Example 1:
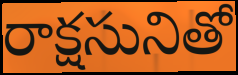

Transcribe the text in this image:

రాక్షసునితో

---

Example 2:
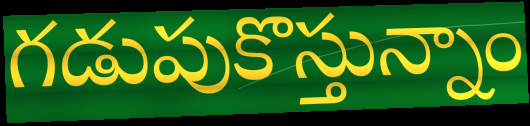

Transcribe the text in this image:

గడుపుకొస్తున్నాం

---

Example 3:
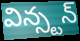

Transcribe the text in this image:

విన్స్టన్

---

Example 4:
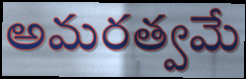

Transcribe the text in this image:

అమరత్వమే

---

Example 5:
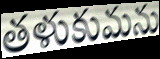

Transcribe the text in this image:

తళుకుమను